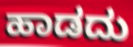
ಹಾಡದು